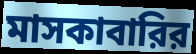
মাসকাবারির